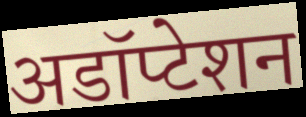
अडॉप्टेशन